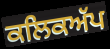
ਕਲਿਕਅੱਪ